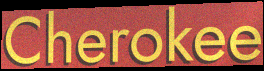
Cherokee